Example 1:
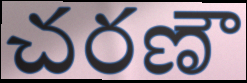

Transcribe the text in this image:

చరణౌ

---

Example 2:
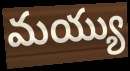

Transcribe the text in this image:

మయ్యు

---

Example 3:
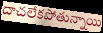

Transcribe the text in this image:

దాచలేకపోతున్నాయి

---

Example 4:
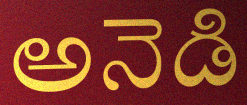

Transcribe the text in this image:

అనెడి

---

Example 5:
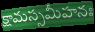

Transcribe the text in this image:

క్షామస్సమీహనః